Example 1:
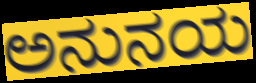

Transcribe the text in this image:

ಅನುನಯ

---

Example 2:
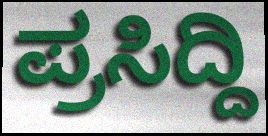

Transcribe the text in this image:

ಪ್ರಸಿದ್ದಿ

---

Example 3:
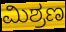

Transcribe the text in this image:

ಮಿಶ್ರಣ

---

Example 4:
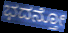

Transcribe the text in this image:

ಭದನ್ತೋ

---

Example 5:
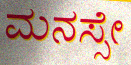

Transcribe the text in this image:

ಮನಸ್ಸೇ